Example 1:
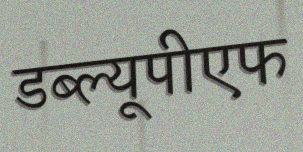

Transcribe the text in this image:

डब्ल्यूपीएफ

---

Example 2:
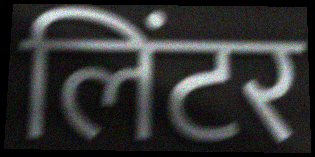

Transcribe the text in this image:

लिंटर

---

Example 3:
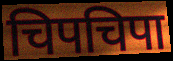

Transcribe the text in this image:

चिपचिपा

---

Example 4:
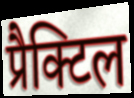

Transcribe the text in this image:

प्रैक्टिल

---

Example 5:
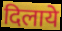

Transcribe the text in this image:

दिलाये